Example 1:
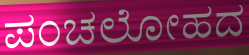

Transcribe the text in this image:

ಪಂಚಲೋಹದ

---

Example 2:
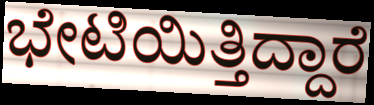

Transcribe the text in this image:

ಭೇಟಿಯಿತ್ತಿದ್ದಾರೆ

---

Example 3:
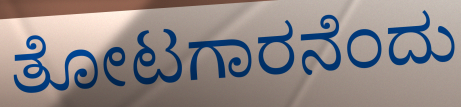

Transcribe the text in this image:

ತೋಟಗಾರನೆಂದು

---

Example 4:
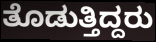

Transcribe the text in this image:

ತೊಡುತ್ತಿದ್ದರು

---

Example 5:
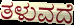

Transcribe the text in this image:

ತಳುವದೆ